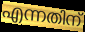
എന്നതിന്